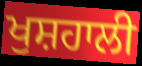
ਖੁਸ਼ਹਾਲੀ